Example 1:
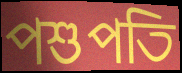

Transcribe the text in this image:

পশুপতি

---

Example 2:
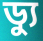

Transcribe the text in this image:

ড্যু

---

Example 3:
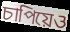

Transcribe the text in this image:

চাপিয়েও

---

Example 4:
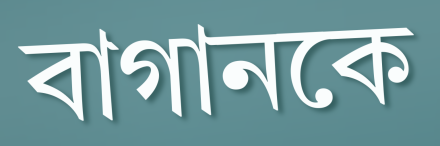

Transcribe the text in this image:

বাগানকে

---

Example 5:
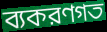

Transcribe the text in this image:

ব্যকরণগত